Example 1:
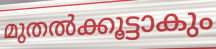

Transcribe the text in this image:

മുതൽക്കൂട്ടാകും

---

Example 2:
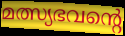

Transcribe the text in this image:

മത്സ്യഭവന്റെ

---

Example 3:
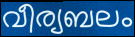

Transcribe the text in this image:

വീര്യബലം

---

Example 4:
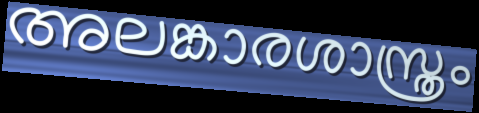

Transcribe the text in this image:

അലങ്കാരശാസ്ത്രം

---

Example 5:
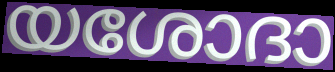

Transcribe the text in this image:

യശോദാ